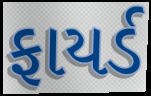
ફાયર્ડ